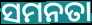
ସମନତା